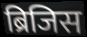
ब्रिजिस